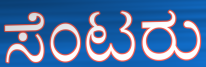
ಸೆಂಟರು